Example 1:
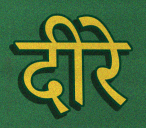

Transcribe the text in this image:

दीरे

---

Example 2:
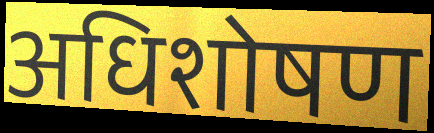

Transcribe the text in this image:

अधिशोषण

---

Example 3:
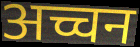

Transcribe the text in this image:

अच्चन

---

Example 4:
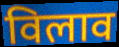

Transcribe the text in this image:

विलाव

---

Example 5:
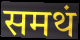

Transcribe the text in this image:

समथं